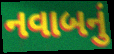
નવાબનું